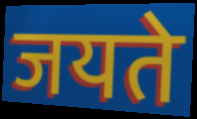
जयते